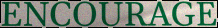
ENCOURAGE